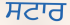
ਸਟਾਰ